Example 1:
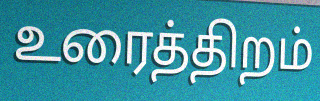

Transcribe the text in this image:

உரைத்திறம்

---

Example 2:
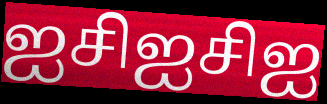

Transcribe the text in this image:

ஐசிஐசிஐ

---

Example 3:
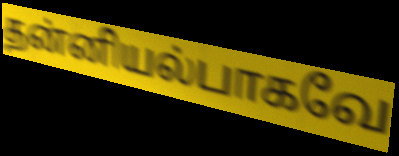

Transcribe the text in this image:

தன்னியல்பாகவே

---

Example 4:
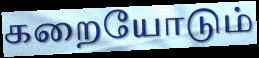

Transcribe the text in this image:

கறையோடும்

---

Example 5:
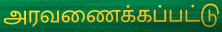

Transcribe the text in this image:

அரவணைக்கப்பட்டு